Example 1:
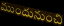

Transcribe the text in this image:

ముందునుంచి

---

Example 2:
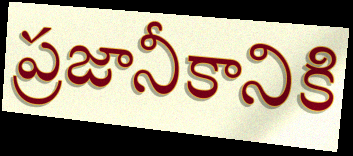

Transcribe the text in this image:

ప్రజానీకానికి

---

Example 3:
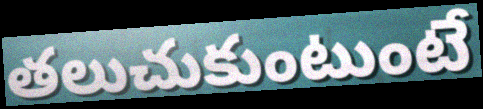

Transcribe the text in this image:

తలుచుకుంటుంటే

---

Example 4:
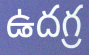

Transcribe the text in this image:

ఉదగ్ర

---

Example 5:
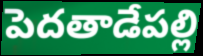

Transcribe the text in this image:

పెదతాడేపల్లి